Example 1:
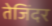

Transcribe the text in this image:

तेजिंदर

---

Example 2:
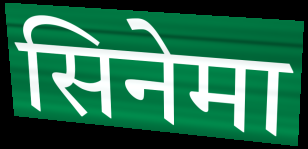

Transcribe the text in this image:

सिनेमा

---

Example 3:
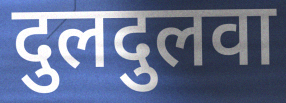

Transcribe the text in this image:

दुलदुलवा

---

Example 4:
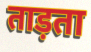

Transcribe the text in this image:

ताड़ता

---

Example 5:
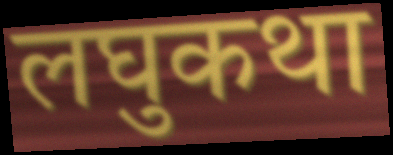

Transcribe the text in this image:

लघुकथा